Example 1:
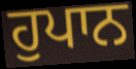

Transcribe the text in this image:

ਹੁਪਾਨ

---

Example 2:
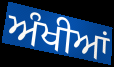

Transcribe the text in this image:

ਅੰਖੀਆਂ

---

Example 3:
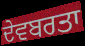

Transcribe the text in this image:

ਦੇਵਬਰਤਾ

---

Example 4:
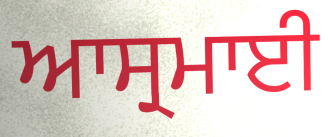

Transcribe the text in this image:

ਆਸ੍ਰਮਾਈ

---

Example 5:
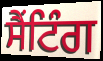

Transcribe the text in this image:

ਸੈਂਟਿੰਗ